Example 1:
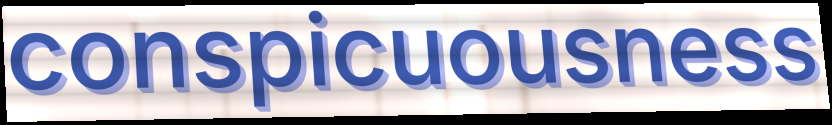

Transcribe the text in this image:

conspicuousness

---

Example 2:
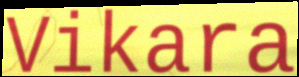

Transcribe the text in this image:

Vikara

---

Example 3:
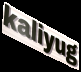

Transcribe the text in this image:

kaliyug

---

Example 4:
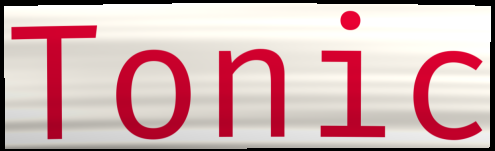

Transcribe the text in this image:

Tonic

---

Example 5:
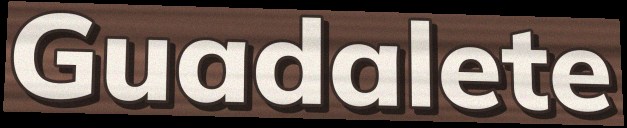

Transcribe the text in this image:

Guadalete